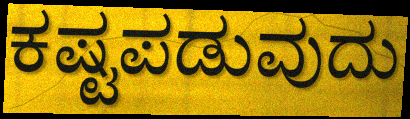
ಕಷ್ಟಪಡುವುದು